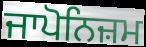
ਜਾਪੋਨਿਜ਼ਮ